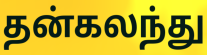
தன்கலந்து